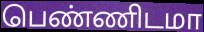
பெண்ணிடமா